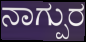
ನಾಗ್ಪುರ